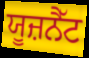
ਯੂਜ਼ਨੈੱਟ